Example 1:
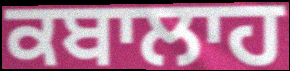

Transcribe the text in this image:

ਕਬਾਲਾਹ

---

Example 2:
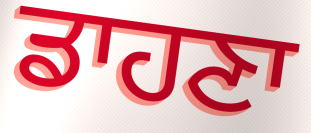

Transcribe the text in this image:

ਡਾਹਣਾ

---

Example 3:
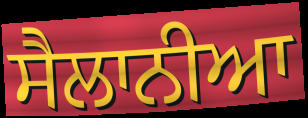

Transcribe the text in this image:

ਸੈਲਾਨੀਆ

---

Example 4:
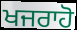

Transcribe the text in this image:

ਖਜਰਾਹੋ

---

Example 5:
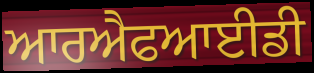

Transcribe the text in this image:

ਆਰਐਫਆਈਡੀ